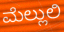
ಮೆಲ್ಲುಲಿ